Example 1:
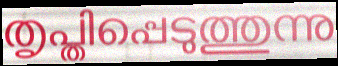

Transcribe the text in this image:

തൃപ്തിപ്പെടുത്തുന്നു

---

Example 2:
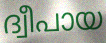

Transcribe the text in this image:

ദ്വീപായ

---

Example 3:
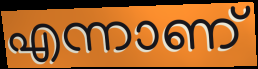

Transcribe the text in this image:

എന്നാണ്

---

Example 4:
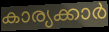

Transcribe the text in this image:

കാര്യക്കാർ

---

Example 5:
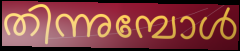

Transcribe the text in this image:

തിന്നുമ്പോൾ